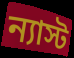
ন্যাস্ট